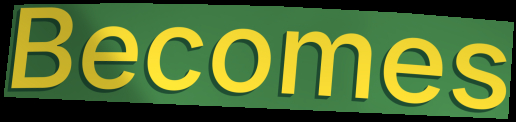
Becomes